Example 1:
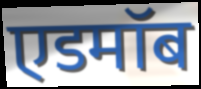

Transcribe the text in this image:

एडमॉब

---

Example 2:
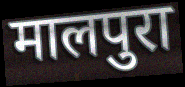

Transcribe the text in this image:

मालपुरा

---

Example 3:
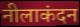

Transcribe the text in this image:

नीलाकंदन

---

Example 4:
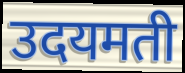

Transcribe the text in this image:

उदयमती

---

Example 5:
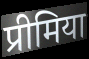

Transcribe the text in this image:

प्रीमिया